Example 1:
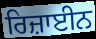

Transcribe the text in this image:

ਰਿਜ਼ਾਈਨ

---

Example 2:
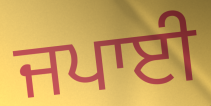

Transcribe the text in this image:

ਜਪਾਈ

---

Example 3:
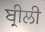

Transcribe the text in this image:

ਬ੍ਰੀਲੀ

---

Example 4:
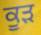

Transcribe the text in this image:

ਕੂੜ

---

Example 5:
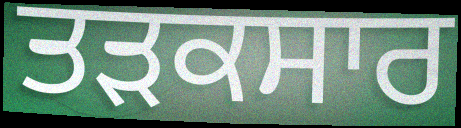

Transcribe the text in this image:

ਤੜਕਸਾਰ